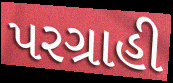
પરગ્રાહી